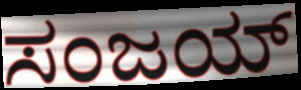
ಸಂಜಯ್